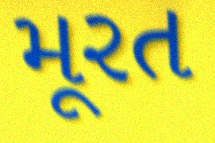
મૂરત